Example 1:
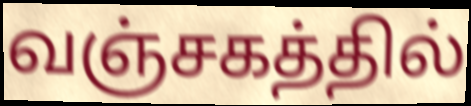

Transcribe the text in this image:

வஞ்சகத்தில்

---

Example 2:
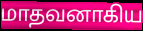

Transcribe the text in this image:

மாதவனாகிய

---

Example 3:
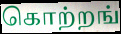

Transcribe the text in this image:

கொற்றங்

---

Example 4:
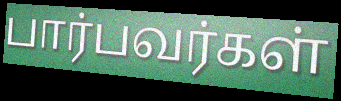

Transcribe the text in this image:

பார்பவர்கள்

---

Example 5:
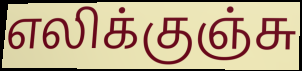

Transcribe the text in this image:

எலிக்குஞ்சு